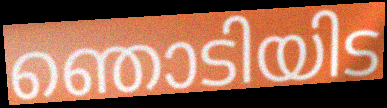
ഞൊടിയിട